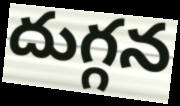
దుగ్గన